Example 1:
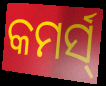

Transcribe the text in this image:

କମର୍ସ୍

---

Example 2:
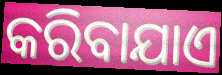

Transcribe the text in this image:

କରିବାଯାଏ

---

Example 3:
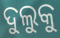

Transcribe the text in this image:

ଦୁଲୁକୁ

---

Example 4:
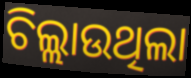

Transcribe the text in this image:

ଚିଲ୍ଲାଉଥିଲା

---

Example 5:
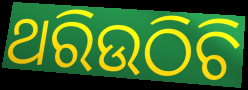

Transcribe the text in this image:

ଥରିଉଠିଚି